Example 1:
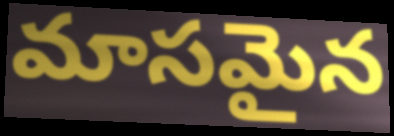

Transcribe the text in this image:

మాసమైన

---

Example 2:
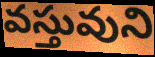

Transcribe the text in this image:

వస్తువుని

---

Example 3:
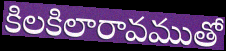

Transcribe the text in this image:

కిలకిలారావముతో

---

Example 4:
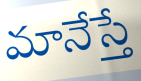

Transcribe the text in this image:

మానేస్తే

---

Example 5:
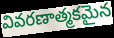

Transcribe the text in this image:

వివరణాత్మకమైన